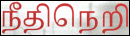
நீதிநெறி